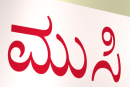
ಮುಸಿ